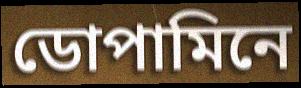
ডোপামিনে